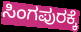
ಸಿಂಗಪುರಕ್ಕೆ